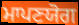
ਮਾਪਣਯੋਗ